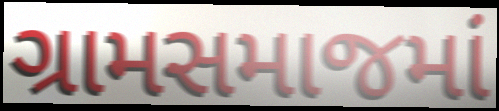
ગ્રામસમાજમાં